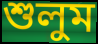
শুলুম